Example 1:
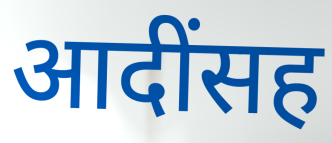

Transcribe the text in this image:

आदींसह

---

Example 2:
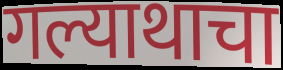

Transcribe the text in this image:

गल्याथाचा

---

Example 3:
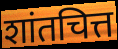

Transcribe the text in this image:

शांतचित्त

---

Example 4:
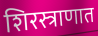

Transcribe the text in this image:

शिरस्त्राणात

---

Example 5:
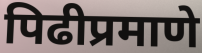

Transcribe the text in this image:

पिढीप्रमाणे